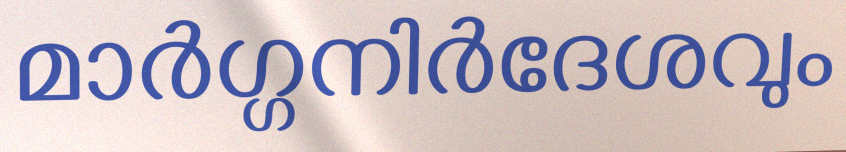
മാർഗ്ഗനിർദേശവും